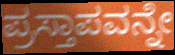
ಪ್ರಸ್ತಾಪವನ್ನೇ